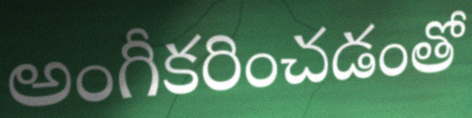
అంగీకరించడంతో